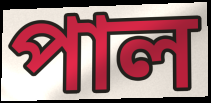
পাল